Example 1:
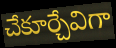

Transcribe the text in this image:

చేకూర్చేవిగా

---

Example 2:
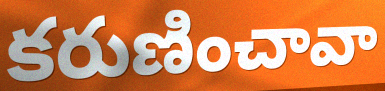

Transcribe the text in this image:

కరుణించావా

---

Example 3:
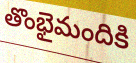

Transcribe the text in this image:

తొంభైమందికి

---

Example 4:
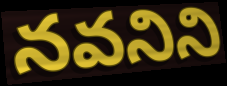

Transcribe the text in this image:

నవనిని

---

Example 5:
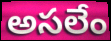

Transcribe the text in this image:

అసలేం